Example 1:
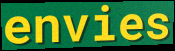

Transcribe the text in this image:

envies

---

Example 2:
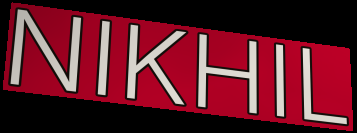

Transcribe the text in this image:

NIKHIL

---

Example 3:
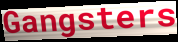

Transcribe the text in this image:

Gangsters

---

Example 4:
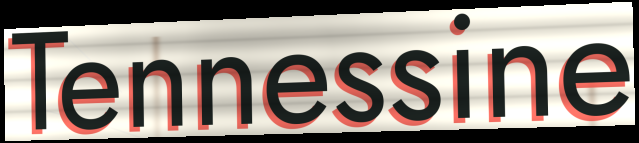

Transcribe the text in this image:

Tennessine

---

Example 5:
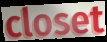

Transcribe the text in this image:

closet